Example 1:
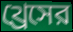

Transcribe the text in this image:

থ্রেসের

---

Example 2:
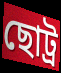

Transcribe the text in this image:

ছোট্র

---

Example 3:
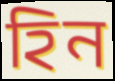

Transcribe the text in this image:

হিন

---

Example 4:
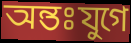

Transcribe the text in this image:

অন্তঃযুগে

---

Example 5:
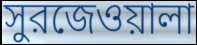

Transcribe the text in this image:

সুরজেওয়ালা